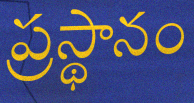
ప్రస్థానం